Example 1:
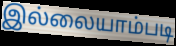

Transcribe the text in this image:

இல்லையாம்படி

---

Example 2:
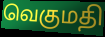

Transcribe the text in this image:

வெகுமதி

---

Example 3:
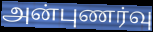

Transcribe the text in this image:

அன்புணர்வு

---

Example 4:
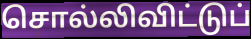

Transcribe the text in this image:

சொல்லிவிட்டுப்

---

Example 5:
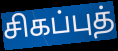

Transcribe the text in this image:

சிகப்புத்